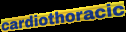
cardiothoracic